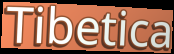
Tibetica